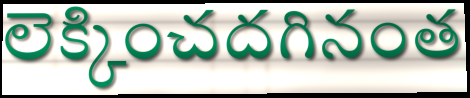
లెక్కించదగినంత